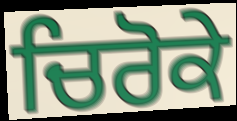
ਚਿਰੋਕੇ